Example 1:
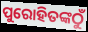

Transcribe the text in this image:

ପୁରୋହିତଙ୍କଠୁଁ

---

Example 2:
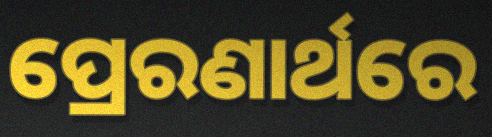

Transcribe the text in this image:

ପ୍ରେରଣାର୍ଥରେ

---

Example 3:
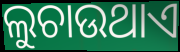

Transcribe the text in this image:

ଲୁଚାଉଥାଏ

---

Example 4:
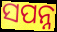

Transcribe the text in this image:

ସପନ୍ନ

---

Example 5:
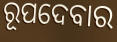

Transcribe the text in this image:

ରୂପଦେବାର